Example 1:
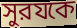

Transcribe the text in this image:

সুরযকে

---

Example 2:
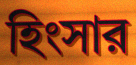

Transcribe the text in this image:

হিংসার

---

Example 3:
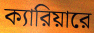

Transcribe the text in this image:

ক্যারিয়ারে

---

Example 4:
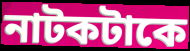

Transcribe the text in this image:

নাটকটাকে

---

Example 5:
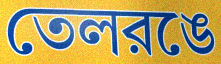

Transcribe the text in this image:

তেলরঙে